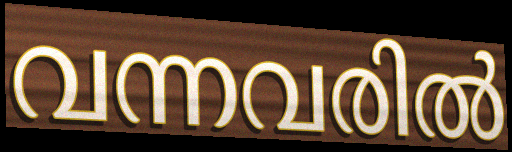
വന്നവരിൽ